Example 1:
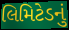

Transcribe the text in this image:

લિમિટેડનું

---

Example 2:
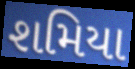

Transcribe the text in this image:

શમિયા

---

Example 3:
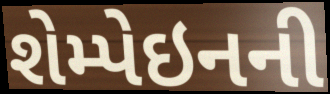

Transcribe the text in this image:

શેમ્પેઇનની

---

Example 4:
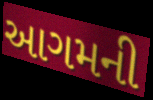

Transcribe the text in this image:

આગમની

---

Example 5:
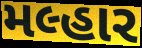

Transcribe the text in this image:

મલ્હાર